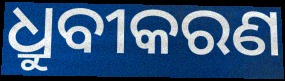
ଧ୍ରୁବୀକରଣ